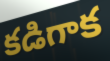
కడిగాక